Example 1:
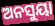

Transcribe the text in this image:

ଅନସୁୟା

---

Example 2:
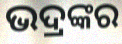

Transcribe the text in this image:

ଭଦ୍ରଙ୍କର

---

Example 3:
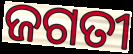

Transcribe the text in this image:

ଜଗତୀ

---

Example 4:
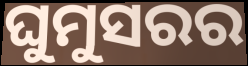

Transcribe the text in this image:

ଘୁମୁସରର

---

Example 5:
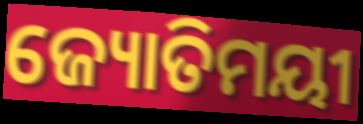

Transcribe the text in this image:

ଜ୍ୟୋତିମୟୀ